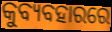
କୁବ୍ୟବହାରରେ